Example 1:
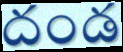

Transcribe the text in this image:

దండ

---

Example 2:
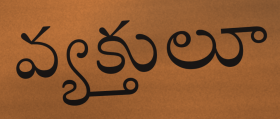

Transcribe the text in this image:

వ్యక్తులూ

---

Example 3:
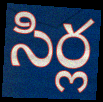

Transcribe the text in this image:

సిర్ల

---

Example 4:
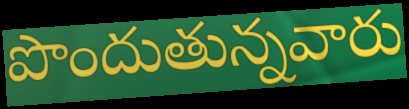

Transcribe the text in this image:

పొందుతున్నవారు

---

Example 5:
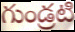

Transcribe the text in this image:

గుండ్రటి